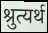
श्रुत्यर्थ